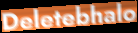
Deletebhalo